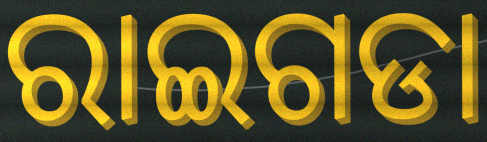
ରାଇଗଡା